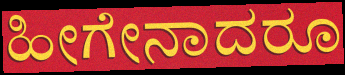
ಹೀಗೇನಾದರೂ